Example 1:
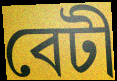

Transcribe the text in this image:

বেটী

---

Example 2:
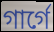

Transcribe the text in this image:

গাৰ্গে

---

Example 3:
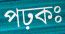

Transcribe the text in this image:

পঢ়কঃ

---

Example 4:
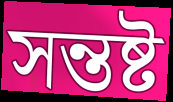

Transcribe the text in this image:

সন্তষ্ট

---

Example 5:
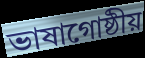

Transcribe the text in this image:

ভাষাগোষ্ঠীয়